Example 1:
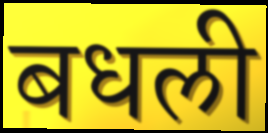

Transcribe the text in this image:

बधली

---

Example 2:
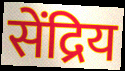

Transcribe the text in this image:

सेंद्रिय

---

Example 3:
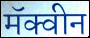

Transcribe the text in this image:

मॅक्वीन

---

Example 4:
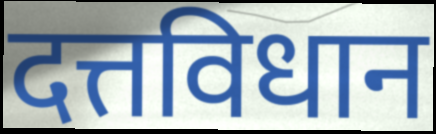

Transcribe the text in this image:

दत्तविधान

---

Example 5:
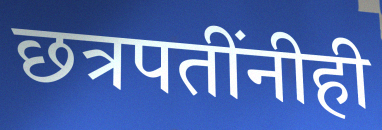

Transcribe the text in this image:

छत्रपतींनीही